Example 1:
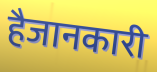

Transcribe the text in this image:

हैजानकारी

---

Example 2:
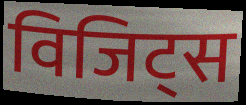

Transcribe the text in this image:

विजिट्स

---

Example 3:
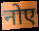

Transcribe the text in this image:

नोए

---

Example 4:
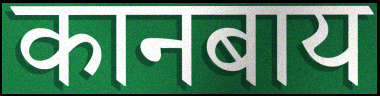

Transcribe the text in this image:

कानबाय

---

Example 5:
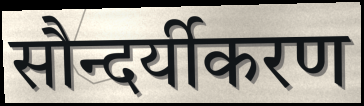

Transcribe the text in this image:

सौन्दर्यीकरण